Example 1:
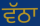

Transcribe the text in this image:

ਵੱਠਾ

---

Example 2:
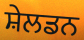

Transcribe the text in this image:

ਸ਼ੇਲਡਨ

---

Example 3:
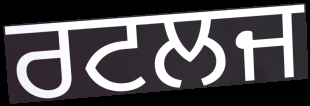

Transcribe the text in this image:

ਰਟਲਜ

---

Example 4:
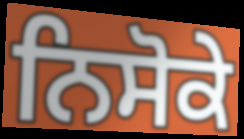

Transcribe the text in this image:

ਨਿਸੋਕੇ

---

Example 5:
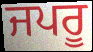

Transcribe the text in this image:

ਜਪਰੂ